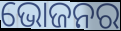
ଭୋଜନର